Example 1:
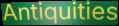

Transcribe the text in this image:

Antiquities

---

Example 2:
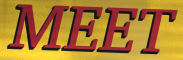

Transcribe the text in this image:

MEET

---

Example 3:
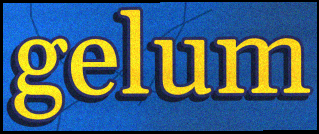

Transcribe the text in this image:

gelum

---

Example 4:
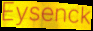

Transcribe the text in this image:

Eysenck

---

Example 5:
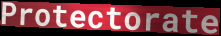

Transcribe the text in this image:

Protectorate